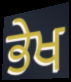
ਭੇਖ